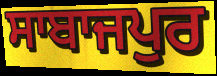
ਸਾਬਾਜਪੁਰ